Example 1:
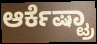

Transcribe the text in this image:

ಆರ್ಕೆಷ್ಟ್ರಾ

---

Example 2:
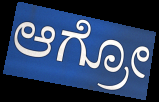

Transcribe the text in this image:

ಆಗ್ರೋ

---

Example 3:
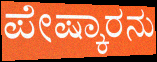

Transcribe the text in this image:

ಪೇಷ್ಕಾರನು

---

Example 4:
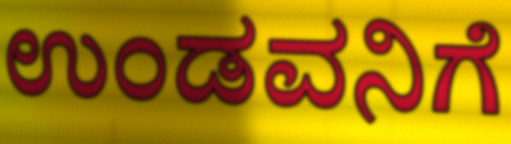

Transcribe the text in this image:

ಉಂಡವನಿಗೆ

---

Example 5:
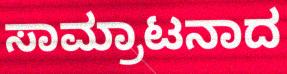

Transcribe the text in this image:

ಸಾಮ್ರಾಟನಾದ